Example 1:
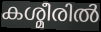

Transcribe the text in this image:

കശ്മീരിൽ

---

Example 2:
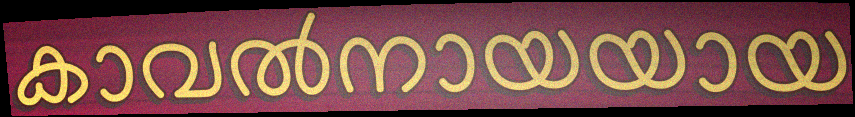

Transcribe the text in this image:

കാവൽനായയായ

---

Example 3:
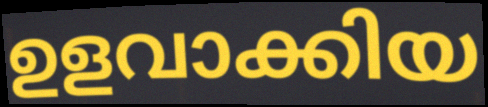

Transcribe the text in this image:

ഉളവാക്കിയ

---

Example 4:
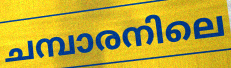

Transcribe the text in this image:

ചമ്പാരനിലെ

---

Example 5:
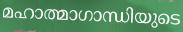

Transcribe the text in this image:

മഹാത്മാഗാന്ധിയുടെ